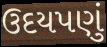
ઉદયપણું